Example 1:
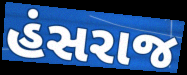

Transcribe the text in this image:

હંસરાજ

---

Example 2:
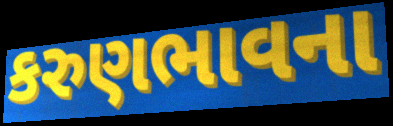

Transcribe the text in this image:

કરુણભાવના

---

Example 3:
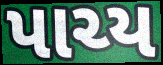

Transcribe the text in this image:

પાચ્ય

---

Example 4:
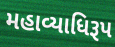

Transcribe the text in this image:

મહાવ્યાધિરૂપ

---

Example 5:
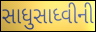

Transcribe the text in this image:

સાધુસાધ્વીની